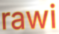
rawi